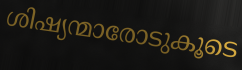
ശിഷ്യന്മാരോടുകൂടെ